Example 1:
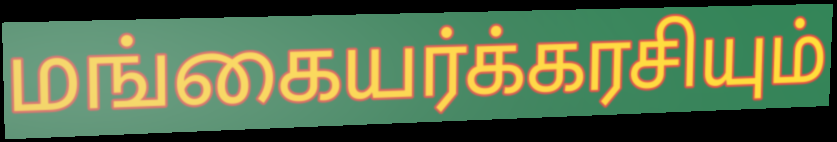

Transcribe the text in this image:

மங்கையர்க்கரசியும்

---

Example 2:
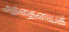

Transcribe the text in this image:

அத்தையைக்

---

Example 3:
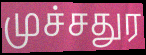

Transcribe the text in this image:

முச்சதுர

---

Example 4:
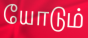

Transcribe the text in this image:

யோடும்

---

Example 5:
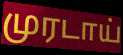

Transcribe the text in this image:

முரடாய்